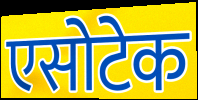
एसोटेक